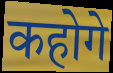
कहोगे